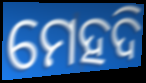
ମେହଦି